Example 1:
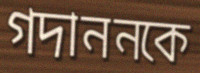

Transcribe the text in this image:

গদাননকে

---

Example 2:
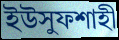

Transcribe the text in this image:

ইউসুফশাহী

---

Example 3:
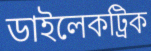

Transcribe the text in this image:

ডাইলেকট্রিক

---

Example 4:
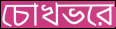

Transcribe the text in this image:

চোখভরে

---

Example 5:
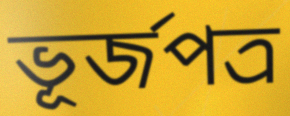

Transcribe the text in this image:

ভূর্জপত্র